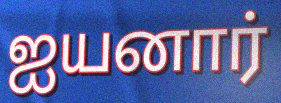
ஐயனார்